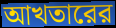
আখতারের